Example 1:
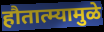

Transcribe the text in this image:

हौतात्म्यामुळे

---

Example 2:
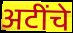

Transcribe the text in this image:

अटींचे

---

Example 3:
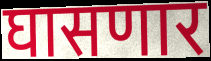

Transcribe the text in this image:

घासणार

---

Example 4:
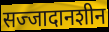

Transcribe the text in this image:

सज्जादानशीन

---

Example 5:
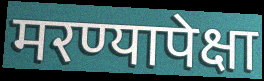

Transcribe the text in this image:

मरण्यापेक्षा